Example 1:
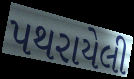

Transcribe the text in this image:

પથરાયેલી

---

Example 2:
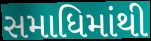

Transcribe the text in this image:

સમાધિમાંથી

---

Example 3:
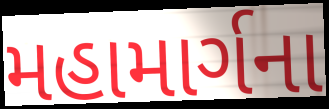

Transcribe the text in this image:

મહામાર્ગના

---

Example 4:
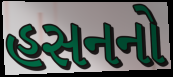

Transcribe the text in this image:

હસનનો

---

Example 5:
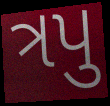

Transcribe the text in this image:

ત્રપુ